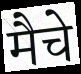
मैचे